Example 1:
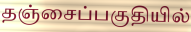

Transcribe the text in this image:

தஞ்சைப்பகுதியில்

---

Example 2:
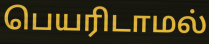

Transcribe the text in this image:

பெயரிடாமல்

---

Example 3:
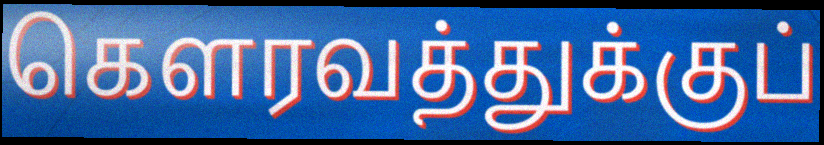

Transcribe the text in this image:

கௌரவத்துக்குப்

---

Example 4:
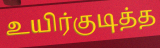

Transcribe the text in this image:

உயிர்குடித்த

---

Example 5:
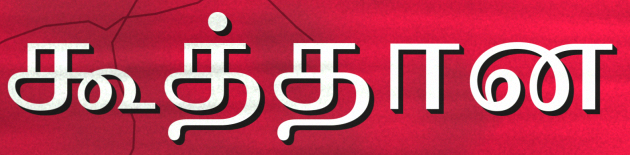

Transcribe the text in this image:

கூத்தான